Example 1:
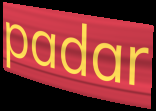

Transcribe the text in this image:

padar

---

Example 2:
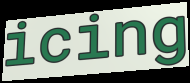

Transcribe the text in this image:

icing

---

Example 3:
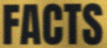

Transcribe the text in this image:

FACTS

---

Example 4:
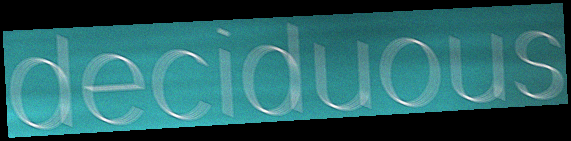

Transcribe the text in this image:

deciduous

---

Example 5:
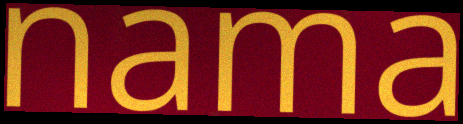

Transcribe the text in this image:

nama